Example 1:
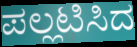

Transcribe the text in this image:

ಪಲ್ಲಟಿಸಿದ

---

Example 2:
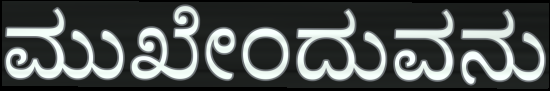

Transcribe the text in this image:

ಮುಖೇಂದುವನು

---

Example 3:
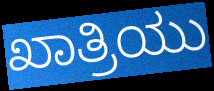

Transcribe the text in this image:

ಖಾತ್ರಿಯು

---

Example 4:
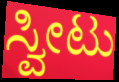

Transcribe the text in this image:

ಸ್ವೀಟು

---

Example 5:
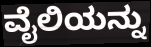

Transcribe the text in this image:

ವೈಲಿಯನ್ನು